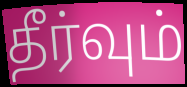
தீர்வும்